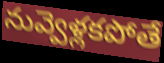
నువ్వెళ్లకపోతే